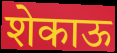
शेकाऊ